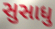
સુસાધુ